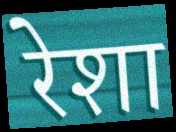
रेशा